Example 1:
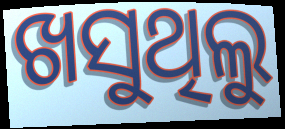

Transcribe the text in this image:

ଖସୁଥିଲୁ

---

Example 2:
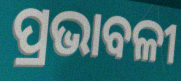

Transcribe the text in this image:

ପ୍ରଭାବଳୀ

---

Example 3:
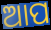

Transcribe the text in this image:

ଆପ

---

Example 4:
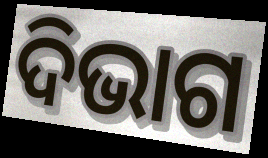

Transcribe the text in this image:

ଦିଭାଗ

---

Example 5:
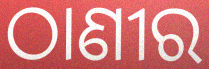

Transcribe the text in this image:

ଠାଣୀର